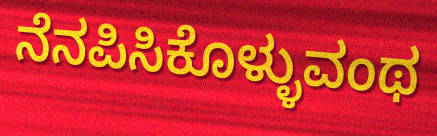
ನೆನಪಿಸಿಕೊಳ್ಳುವಂಥ